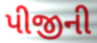
પીજીની